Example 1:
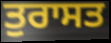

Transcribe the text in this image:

ਤੁਰਾਸਤ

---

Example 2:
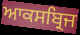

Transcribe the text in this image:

ਆਕਸਬ੍ਰਿਜ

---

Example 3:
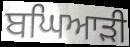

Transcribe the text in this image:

ਬਘਿਆੜੀ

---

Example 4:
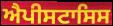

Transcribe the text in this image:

ਐਪੀਸਟਾਸਿਸ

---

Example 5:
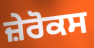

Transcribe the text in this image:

ਜ਼ੇਰੋਕਸ